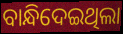
ବାନ୍ଧିଦେଇଥିଲା